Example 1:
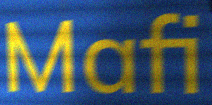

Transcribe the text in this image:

Mafi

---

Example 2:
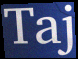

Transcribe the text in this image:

Taj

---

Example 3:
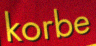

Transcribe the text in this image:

korbe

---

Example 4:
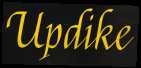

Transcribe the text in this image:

Updike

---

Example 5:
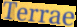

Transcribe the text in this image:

Terrae